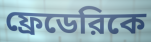
ফ্রেডেরিকে